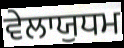
ਵੇਲਾਯੁਧਮ